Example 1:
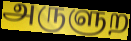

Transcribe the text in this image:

அருளுற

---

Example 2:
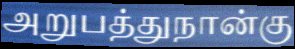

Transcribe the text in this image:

அறுபத்துநான்கு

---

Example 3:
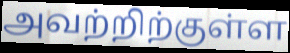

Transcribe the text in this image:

அவற்றிற்குள்ள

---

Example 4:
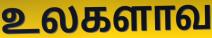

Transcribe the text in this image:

உலகளாவ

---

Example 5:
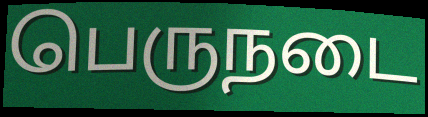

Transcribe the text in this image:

பெருநடை